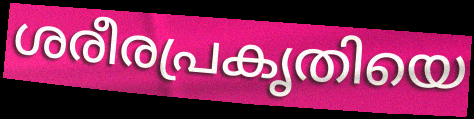
ശരീരപ്രകൃതിയെ